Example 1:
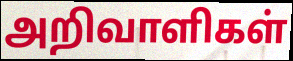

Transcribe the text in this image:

அறிவாளிகள்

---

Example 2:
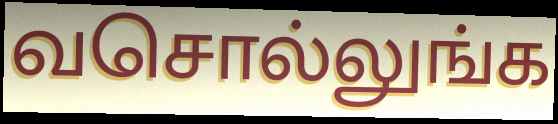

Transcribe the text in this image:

வசொல்லுங்க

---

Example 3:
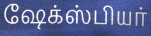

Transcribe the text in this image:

ஷேக்ஸ்பியர்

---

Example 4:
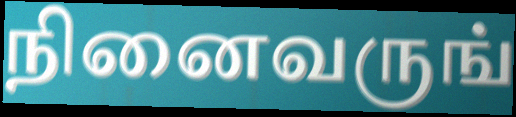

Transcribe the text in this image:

நினைவருங்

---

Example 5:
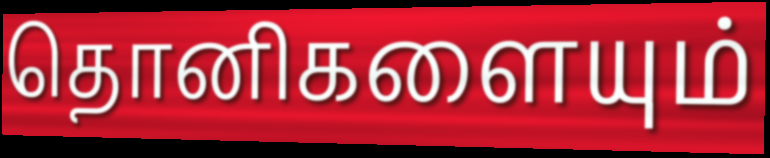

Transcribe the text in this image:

தொனிகளையும்